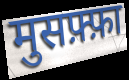
मुसफ़्फ़ा